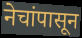
नेचांपासून